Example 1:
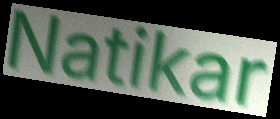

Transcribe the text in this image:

Natikar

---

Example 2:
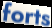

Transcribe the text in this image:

forts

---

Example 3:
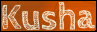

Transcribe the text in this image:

Kusha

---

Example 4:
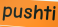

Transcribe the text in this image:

pushti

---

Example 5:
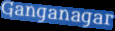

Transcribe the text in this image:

Ganganagar